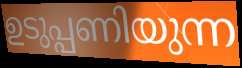
ഉടുപ്പണിയുന്ന